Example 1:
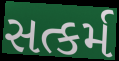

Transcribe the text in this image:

સત્કર્મ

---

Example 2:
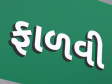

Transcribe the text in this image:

ફાળવી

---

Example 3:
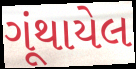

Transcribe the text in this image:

ગૂંથાયેલ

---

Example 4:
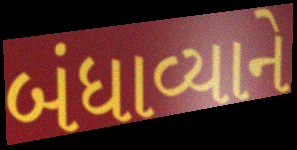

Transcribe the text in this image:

બંધાવ્યાને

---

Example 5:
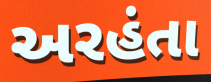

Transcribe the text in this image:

અરહંતા